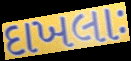
દાખલાઃ